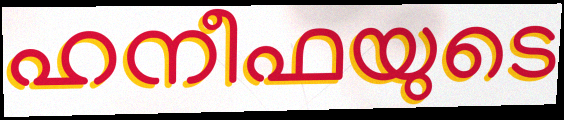
ഹനീഫയുടെ